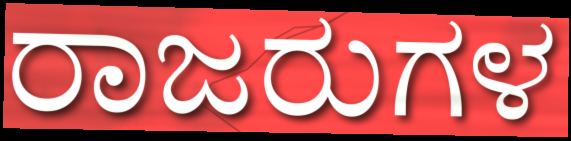
ರಾಜರುಗಳ